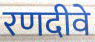
रणदीवे